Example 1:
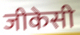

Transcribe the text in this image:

जीकेसी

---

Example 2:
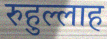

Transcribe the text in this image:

रुहुल्लाह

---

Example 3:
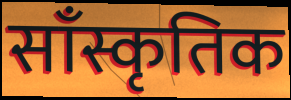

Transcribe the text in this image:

साँस्कृतिक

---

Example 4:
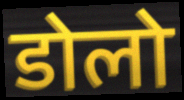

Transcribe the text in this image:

डोलो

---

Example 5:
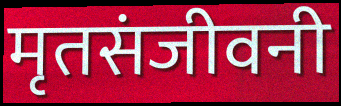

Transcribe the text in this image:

मृतसंजीवनी